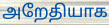
அறேதியாக